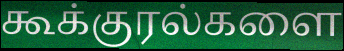
கூக்குரல்களை